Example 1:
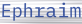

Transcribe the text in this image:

Ephraim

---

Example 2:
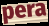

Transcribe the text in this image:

pera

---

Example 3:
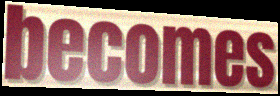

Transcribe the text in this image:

becomes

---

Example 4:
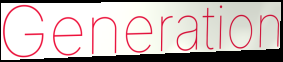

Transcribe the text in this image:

Generation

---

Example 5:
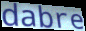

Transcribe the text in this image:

dabre